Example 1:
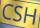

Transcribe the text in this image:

CSH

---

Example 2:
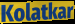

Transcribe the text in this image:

Kolatkar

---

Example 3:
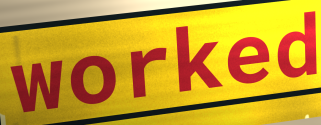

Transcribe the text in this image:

worked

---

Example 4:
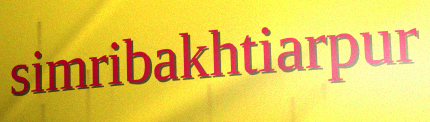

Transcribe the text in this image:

simribakhtiarpur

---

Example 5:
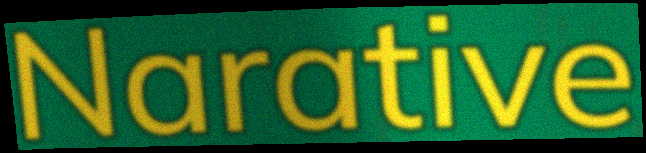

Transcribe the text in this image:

Narative